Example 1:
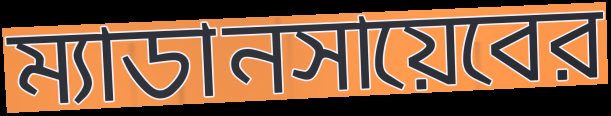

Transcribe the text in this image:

ম্যাডানসায়েবের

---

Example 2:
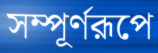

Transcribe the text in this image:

সম্পূর্ণরূপে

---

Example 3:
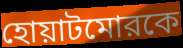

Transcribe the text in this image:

হোয়াটমোরকে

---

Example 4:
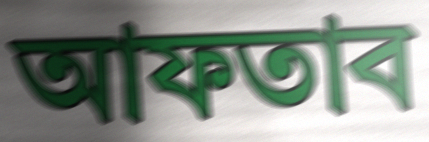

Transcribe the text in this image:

আফতাব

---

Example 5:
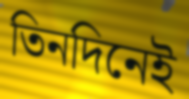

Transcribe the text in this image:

তিনদিনেই